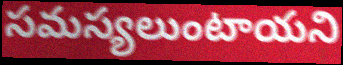
సమస్యలుంటాయని